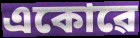
একোৱে